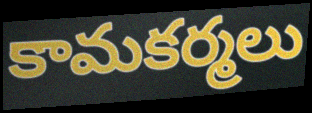
కామకర్మలు